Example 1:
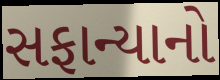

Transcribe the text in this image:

સફાન્યાનો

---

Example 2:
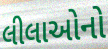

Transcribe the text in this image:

લીલાઓનો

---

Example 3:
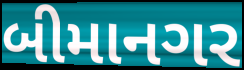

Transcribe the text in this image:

બીમાનગર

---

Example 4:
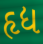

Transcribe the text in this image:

હૃદ્ય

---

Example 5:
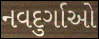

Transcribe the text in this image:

નવદુર્ગાઓ